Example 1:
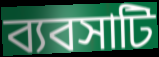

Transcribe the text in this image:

ব্যবসাটি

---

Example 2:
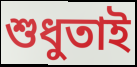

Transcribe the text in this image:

শুধুতাই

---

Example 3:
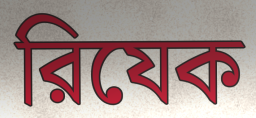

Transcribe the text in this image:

রিযেক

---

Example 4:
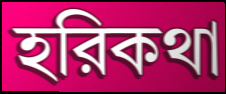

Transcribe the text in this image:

হরিকথা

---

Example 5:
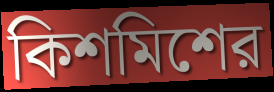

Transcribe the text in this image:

কিশমিশের